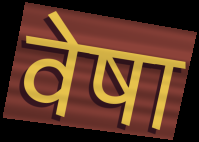
वेषा